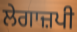
ਲੇਗਾਜ਼ਪੀ